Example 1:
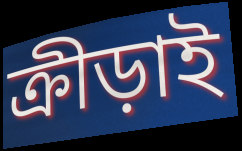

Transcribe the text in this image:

ক্রীড়াই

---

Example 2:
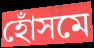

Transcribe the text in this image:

হোঁসমে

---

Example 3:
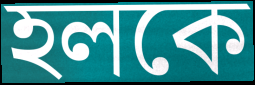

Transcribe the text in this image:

হলকে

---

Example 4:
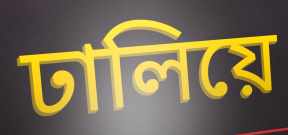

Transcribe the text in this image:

ঢালিয়ে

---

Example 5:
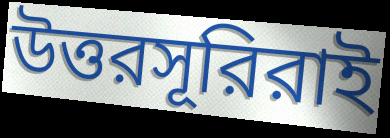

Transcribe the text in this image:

উত্তরসূরিরাই